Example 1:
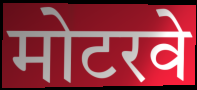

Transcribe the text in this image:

मोटरवे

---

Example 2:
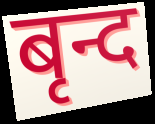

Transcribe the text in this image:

बृन्द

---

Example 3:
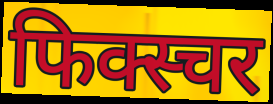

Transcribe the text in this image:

फिक्स्चर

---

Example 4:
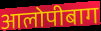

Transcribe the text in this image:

आलोपीबाग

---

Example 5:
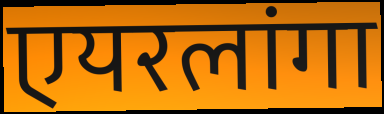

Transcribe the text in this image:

एयरलांगा